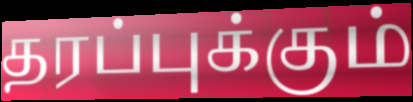
தரப்புக்கும்